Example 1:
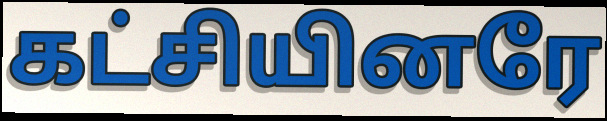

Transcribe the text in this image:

கட்சியினரே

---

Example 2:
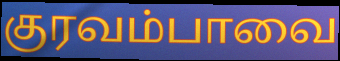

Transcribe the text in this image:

குரவம்பாவை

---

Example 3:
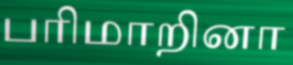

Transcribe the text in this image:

பரிமாறினா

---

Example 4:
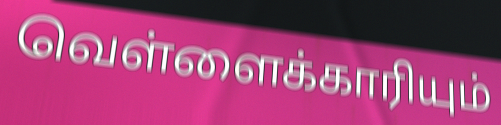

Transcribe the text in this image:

வெள்ளைக்காரியும்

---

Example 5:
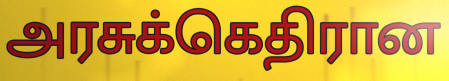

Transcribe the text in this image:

அரசுக்கெதிரான